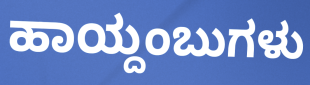
ಹಾಯ್ದಂಬುಗಳು